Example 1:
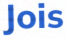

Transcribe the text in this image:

Jois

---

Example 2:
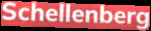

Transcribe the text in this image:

Schellenberg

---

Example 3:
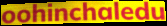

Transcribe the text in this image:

oohinchaledu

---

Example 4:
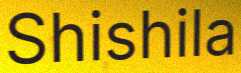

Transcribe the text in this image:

Shishila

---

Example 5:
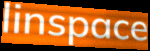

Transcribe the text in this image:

linspace